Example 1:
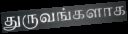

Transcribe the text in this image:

துருவங்களாக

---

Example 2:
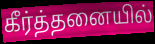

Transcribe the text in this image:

கீர்த்தனையில்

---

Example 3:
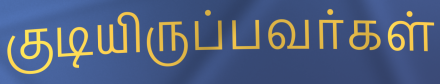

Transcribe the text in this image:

குடியிருப்பவர்கள்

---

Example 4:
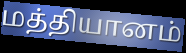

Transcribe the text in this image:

மத்தியானம்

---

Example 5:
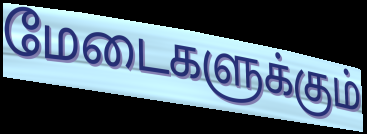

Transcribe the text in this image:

மேடைகளுக்கும்